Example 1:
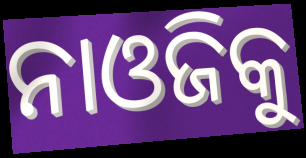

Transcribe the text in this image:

ନାଓଜିକୁ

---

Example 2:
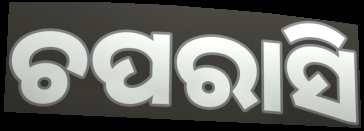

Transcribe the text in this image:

ଚପରାସି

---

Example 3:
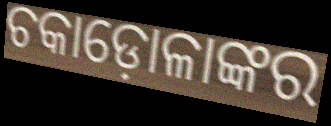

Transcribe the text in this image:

ଚକାଡ଼ୋଳାଙ୍କର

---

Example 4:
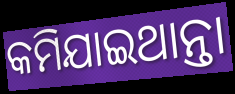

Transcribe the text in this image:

କମିଯାଇଥାନ୍ତା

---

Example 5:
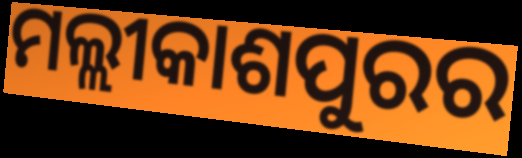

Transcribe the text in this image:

ମଲ୍ଲୀକାଶପୁରର